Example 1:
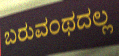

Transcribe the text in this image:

ಬರುವಂಥದಲ್ಲ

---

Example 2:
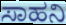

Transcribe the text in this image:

ಸಾಹನಿ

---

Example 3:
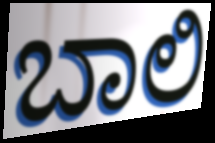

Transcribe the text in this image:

ಬಾಲಿ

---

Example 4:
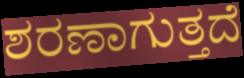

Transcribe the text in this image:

ಶರಣಾಗುತ್ತದೆ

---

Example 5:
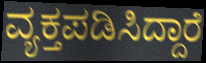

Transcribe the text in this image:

ವ್ಯಕ್ತಪಡಿಸಿದ್ದಾರೆ